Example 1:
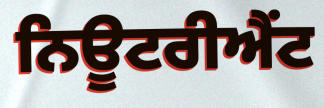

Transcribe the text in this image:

ਨਿਊਟਰੀਐਂਟ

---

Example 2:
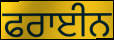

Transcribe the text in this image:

ਫਰਾਈਨ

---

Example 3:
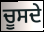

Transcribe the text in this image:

ਚੂਸਦੇ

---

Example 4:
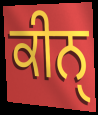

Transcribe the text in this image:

ਕੀਨੑ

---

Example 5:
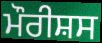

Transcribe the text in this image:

ਮੌਰੀਸ਼ਸ